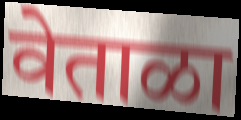
वेताळा